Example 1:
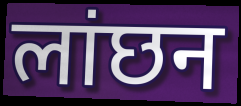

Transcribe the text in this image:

लांछन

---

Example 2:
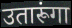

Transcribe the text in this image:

उतारूंगा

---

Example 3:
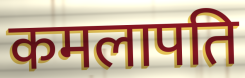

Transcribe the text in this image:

कमलापति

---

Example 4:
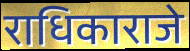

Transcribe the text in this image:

राधिकाराजे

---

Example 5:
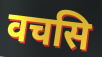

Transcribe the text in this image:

वचसि